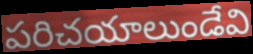
పరిచయాలుండేవి